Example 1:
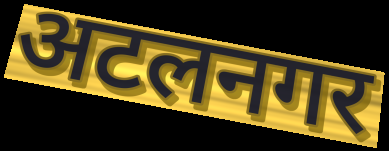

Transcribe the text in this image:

अटलनगर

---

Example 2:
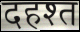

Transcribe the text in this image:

दहश्त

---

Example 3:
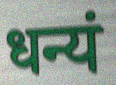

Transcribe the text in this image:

धन्यं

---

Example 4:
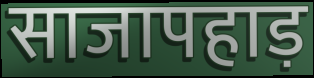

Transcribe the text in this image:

साजापहाड़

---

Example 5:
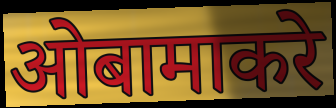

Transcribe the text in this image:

ओबामाकरे